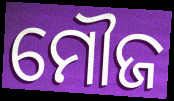
ମୌଜ